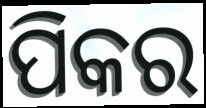
ପିକର